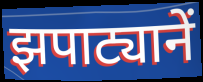
झपाट्यानें